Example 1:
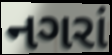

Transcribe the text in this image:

નગરાં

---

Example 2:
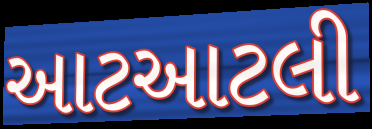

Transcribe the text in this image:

આટઆટલી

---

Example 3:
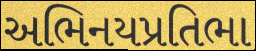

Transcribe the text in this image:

અભિનયપ્રતિભા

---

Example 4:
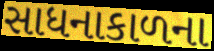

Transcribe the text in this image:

સાધનાકાળના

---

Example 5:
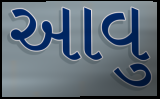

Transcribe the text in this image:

આવુ